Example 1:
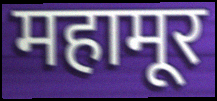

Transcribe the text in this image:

महामूर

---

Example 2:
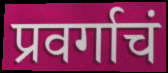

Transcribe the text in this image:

प्रवर्गाचं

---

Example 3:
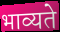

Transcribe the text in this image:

भाव्यते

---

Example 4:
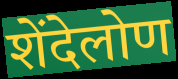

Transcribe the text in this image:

शेंदेलोण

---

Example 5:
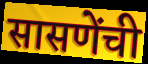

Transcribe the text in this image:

सासणेंची